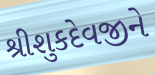
શ્રીશુકદેવજીને